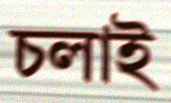
চলাই